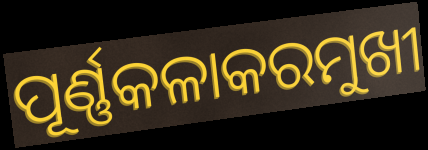
ପୂର୍ଣ୍ଣକଳାକରମୁଖୀ